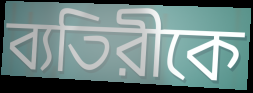
ব্যতিরীকে